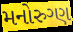
મનોરુગ્ણ